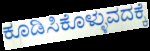
ಕೂಡಿಸಿಕೊಳ್ಳುವದಕ್ಕೆ